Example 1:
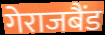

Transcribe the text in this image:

गेराजबैंड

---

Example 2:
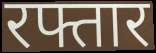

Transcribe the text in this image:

रफ्तार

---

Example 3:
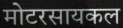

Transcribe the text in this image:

मोटरसायकल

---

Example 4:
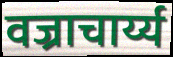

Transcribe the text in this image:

वज्राचार्य्य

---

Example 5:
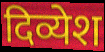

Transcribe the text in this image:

दिव्येश